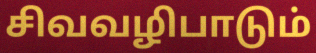
சிவவழிபாடும்